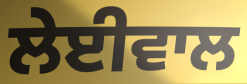
ਲੇਈਵਾਲ